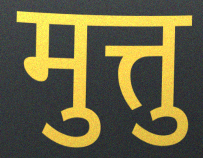
मुत्तु